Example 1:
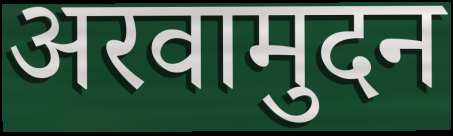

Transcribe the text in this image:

अरवामुदन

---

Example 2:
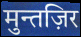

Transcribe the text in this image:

मुन्तज़िर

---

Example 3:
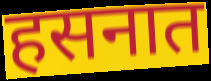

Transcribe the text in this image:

हसनात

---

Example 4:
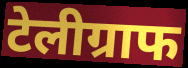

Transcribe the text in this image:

टेलीग्राफ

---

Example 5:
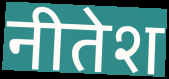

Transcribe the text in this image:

नीतेश